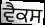
ਵੈਕਸ